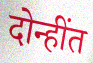
दोन्हींत